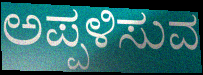
ಅಪ್ಪಳಿಸುವ